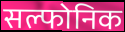
सल्फोनिक